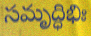
సమృద్ధిభిః